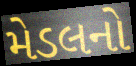
મેડલનો